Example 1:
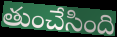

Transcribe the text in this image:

తుంచేసింది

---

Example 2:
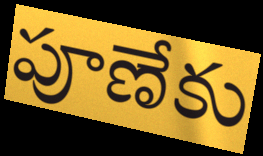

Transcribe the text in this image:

పూణేకు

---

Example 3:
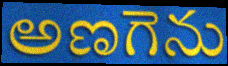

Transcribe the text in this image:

అణగెను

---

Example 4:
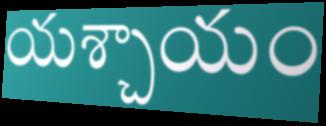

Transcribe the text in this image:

యశ్చాయం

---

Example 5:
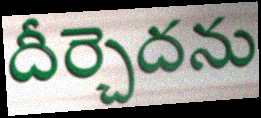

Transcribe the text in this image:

దీర్చెదను